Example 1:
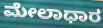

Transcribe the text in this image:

ಮೇಲಾಧಾರ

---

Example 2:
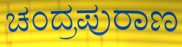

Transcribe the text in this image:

ಚಂದ್ರಪುರಾಣ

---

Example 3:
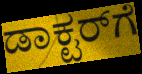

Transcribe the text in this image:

ಡಾಕ್ಟರ್‌ಗೆ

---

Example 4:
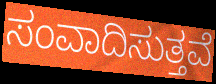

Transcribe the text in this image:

ಸಂವಾದಿಸುತ್ತವೆ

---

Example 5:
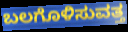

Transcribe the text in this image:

ಬಲಗೊಳಿಸುವತ್ತ